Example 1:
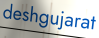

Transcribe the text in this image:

deshgujarat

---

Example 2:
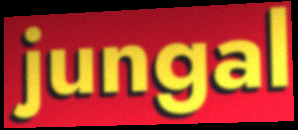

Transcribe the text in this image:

jungal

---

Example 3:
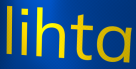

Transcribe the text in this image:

lihta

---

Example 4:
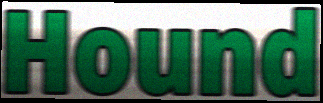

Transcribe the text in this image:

Hound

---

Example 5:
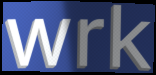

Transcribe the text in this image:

wrk